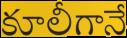
కూలీగానే